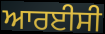
ਆਰਈਸੀ